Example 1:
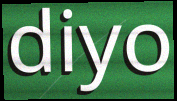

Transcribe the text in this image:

diyo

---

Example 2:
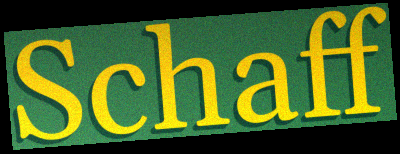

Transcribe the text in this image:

Schaff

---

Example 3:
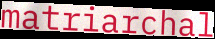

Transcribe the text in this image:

matriarchal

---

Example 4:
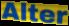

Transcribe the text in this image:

Alter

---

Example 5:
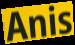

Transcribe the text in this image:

Anis